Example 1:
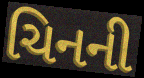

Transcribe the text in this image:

ચિનની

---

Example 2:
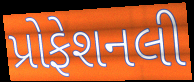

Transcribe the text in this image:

પ્રોફેશનલી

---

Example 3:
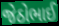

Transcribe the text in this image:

જેઠોભાઈ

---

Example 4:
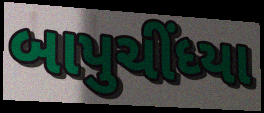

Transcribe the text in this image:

બાપુચીંધ્યા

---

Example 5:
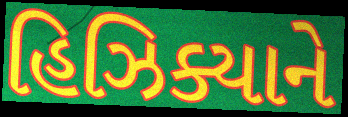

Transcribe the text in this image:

હિઝિક્યાને